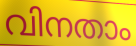
വിനതാം